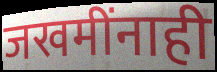
जखमींनाही